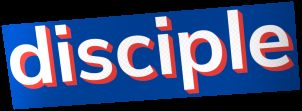
disciple